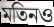
মতিনও